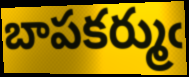
బాపకర్ముఁ